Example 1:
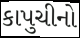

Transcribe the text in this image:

કાપુચીનો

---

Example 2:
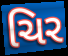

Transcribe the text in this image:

ચિર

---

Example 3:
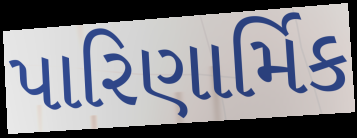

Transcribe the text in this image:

પારિણાર્મિક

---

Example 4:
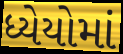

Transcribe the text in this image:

ધ્યેયોમાં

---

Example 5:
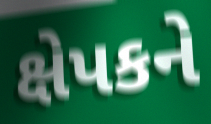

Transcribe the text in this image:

ક્ષેપકને